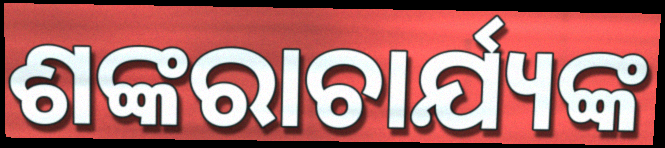
ଶଙ୍କରାଚାର୍ଯ୍ୟଙ୍କ